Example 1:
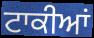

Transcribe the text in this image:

ਟਾਕੀਆਂ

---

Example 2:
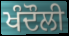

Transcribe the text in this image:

ਖੰਦੌਲੀ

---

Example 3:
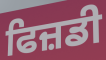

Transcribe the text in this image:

ਫਿਜ਼ਡੀ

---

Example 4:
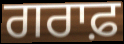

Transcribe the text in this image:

ਗਰਾਫ਼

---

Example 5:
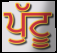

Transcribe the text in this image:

ਪੁੱਟੂ